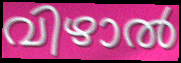
വിഴാൽ